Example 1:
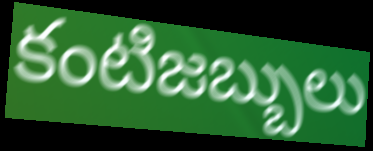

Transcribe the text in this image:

కంటిజబ్బులు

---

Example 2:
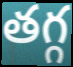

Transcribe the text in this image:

తగ్గ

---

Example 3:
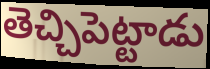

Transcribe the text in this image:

తెచ్చిపెట్టాడు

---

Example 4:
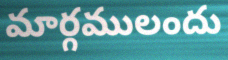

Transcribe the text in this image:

మార్గములందు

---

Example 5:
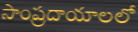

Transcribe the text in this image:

సాంప్రదాయాలలో